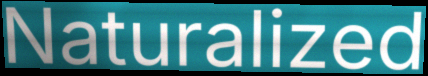
Naturalized